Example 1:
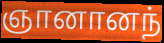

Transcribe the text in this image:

ஞானானந்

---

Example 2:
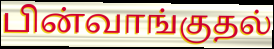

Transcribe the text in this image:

பின்வாங்குதல்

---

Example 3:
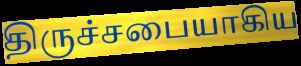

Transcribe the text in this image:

திருச்சபையாகிய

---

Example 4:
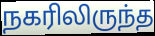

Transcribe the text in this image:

நகரிலிருந்த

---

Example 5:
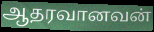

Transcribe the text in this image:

ஆதரவானவன்